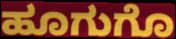
ಹೂಗುಗೊ